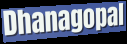
Dhanagopal